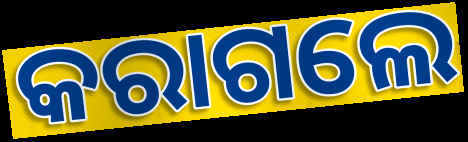
କରାଗଲେ